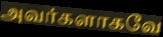
அவர்களாகவே